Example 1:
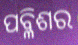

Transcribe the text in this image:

ପବ୍ଳିଶର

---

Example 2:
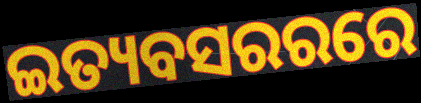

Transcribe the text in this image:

ଇତ୍ୟବସରରରେ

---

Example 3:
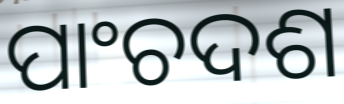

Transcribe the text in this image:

ପାଂଚଦଶ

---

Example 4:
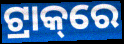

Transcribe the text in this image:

ଟ୍ରାକ୍‌ରେ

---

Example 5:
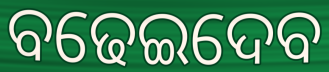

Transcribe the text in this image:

ବଢେଇଦେବ